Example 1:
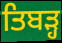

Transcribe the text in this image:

ਤਿਬੜ੍ਹ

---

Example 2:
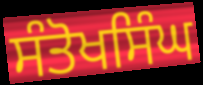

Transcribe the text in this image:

ਸੰਤੋਖਸਿੰਘ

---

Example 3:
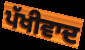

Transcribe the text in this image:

ਪੱਖੀਵਾਦ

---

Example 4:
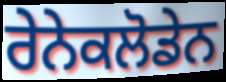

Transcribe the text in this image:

ਰੇਨੇਕਲੋਡੇਨ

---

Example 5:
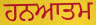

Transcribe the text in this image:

ਹਨਆਤਮ